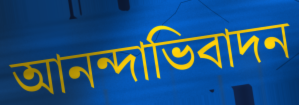
আনন্দাভিবাদন